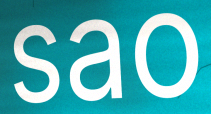
sao